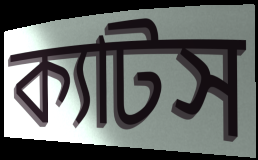
ক্যাটস